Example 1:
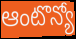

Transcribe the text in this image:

ఆంటొన్యో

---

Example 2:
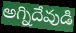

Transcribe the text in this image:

అగ్నిదేవుడి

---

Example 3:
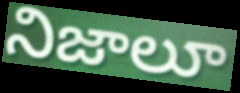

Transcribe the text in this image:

నిజాలూ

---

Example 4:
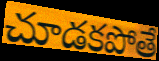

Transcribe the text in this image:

చూడకపోతే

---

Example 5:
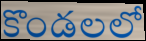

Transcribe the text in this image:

కొండలలో